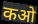
कओ